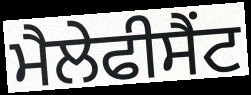
ਮੈਲੇਫੀਸੈਂਟ